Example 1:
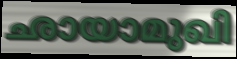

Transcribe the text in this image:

ഛായാമുഖി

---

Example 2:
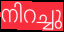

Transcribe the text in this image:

നിറച്ചു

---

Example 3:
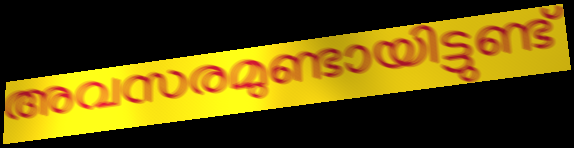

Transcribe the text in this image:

അവസരമുണ്ടായിട്ടുണ്ട്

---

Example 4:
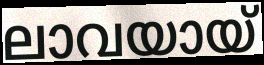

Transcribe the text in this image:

ലാവയായ്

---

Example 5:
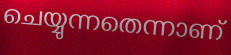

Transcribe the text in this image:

ചെയ്യുന്നതെന്നാണ്